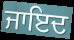
ਜਾਇਦ